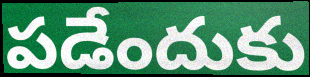
పడేందుకు